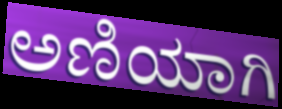
ಅಣಿಯಾಗಿ